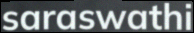
saraswathi